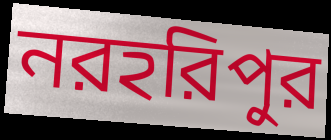
নরহরিপুর